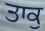
ਤਾਕੁ